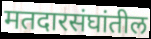
मतदारसंघांतील